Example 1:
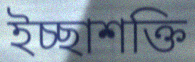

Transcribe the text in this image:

ইচ্ছাশক্তি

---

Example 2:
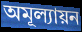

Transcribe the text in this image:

অমূল্যায়ন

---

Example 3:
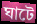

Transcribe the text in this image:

ঘাটে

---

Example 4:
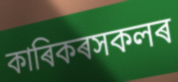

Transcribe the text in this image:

কাৰিকৰসকলৰ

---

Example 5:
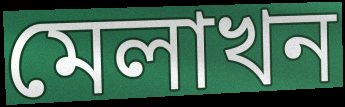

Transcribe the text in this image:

মেলাখন